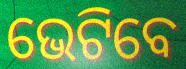
ଭେଟିବେ